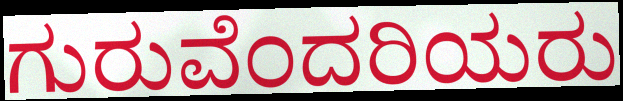
ಗುರುವೆಂದರಿಯರು